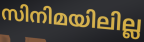
സിനിമയിലില്ല